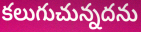
కలుగుచున్నదను